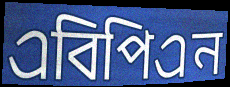
এবিপিএন